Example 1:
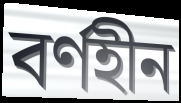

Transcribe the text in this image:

বৰ্ণহীন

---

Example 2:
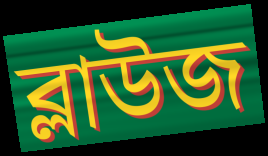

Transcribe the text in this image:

ব্লাউজ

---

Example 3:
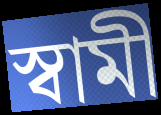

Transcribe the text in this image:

স্বামী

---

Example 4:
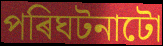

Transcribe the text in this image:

পৰিঘটনাটো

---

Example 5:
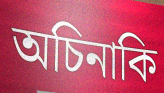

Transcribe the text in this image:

অচিনাকি